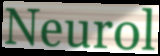
Neurol